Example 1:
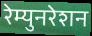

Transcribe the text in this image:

रेम्युनरेशन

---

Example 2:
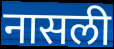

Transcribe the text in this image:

नासली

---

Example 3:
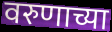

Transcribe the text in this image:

वरुणाच्या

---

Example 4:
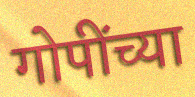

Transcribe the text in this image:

गोपींच्या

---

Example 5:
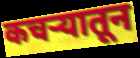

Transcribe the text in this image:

कचर्‍यातून